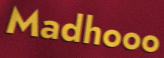
Madhooo